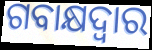
ଗବାକ୍ଷଦ୍ୱାର